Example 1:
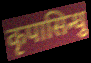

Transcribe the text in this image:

कृपासिन्धु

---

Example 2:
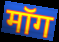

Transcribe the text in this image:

मॉग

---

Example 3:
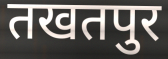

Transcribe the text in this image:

तखतपुर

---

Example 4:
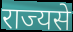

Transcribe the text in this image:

राज्यसे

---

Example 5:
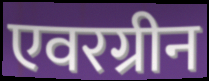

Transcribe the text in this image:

एवरग्रीन